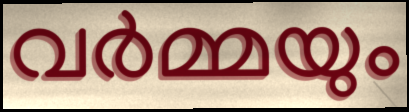
വർമ്മയും